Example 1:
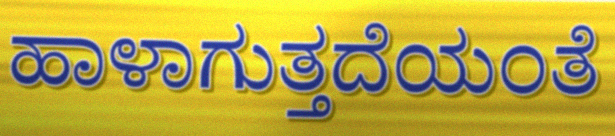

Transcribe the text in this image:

ಹಾಳಾಗುತ್ತದೆಯಂತೆ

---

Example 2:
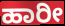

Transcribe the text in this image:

ಹಾರೀ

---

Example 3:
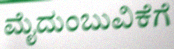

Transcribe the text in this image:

ಮೈದುಂಬುವಿಕೆಗೆ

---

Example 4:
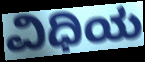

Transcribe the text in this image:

ವಿಧಿಯ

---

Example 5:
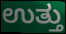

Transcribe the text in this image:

ಉತ್ತು